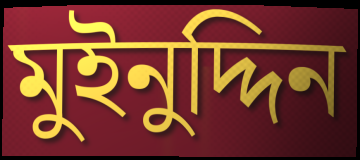
মুইনুদ্দিন